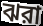
ঝরা